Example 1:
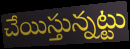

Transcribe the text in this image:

చేయిస్తున్నట్టు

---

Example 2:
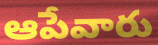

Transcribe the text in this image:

ఆపేవారు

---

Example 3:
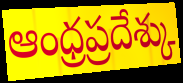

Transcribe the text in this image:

ఆంధ్రప్రదేశ్కు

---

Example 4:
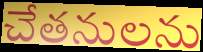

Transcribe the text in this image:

చేతనులను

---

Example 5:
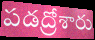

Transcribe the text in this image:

పడద్రోశారు